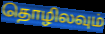
தொழிலவும்